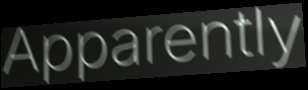
Apparently